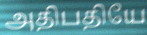
அதிபதியே